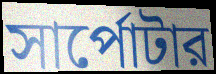
সার্পোটার